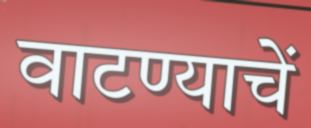
वाटण्याचें